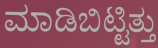
ಮಾಡಿಬಿಟ್ಟಿತ್ತು